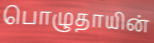
பொழுதாயின்